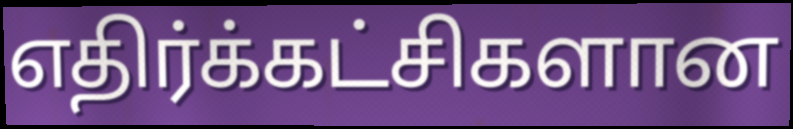
எதிர்க்கட்சிகளான